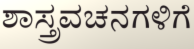
ಶಾಸ್ತ್ರವಚನಗಳಿಗೆ